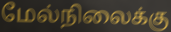
மேல்நிலைக்கு